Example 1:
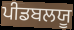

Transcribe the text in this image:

ਪੀਡਬਲਯੂ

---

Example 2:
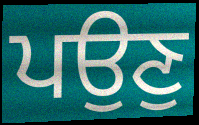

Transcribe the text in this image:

ਪਉਣੁ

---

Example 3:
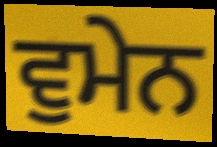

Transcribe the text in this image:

ਵੁਮੇਨ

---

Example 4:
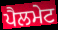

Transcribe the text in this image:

ਪੈਲਮੇਟ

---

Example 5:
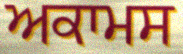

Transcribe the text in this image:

ਅਕਾਮਸ